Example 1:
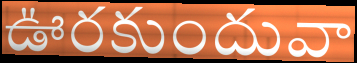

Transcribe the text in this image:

ఊరకుందువా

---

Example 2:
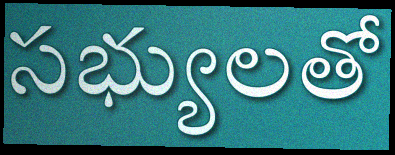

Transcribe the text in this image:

సభ్యులతో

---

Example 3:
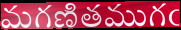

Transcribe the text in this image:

మగణితముగఁ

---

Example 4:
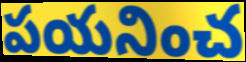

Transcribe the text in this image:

పయనించ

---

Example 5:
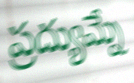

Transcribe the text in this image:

ప్రద్యుమ్నే